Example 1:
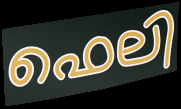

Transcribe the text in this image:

ഫെലി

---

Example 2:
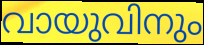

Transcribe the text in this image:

വായുവിനും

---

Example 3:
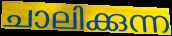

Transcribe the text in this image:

ചാലിക്കുന്ന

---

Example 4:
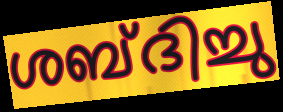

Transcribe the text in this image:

ശബ്ദിച്ചു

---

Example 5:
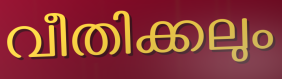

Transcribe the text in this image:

വീതിക്കലും